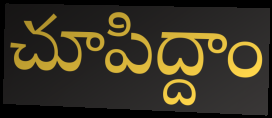
చూపిద్దాం